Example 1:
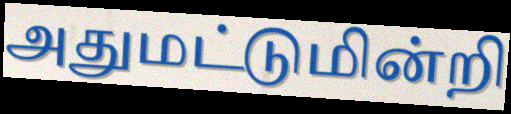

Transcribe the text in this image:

அதுமட்டுமின்றி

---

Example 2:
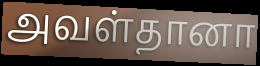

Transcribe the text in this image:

அவள்தானா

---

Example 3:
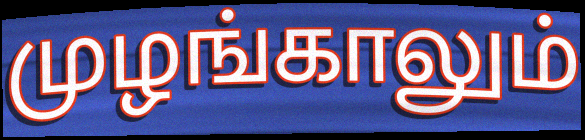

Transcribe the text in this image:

முழங்காலும்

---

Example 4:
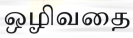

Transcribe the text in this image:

ஒழிவதை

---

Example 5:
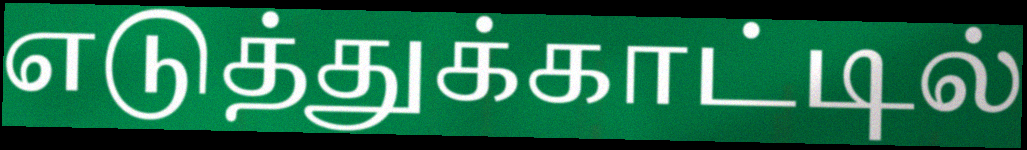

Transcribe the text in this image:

எடுத்துக்காட்டில்